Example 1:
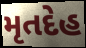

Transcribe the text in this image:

મૃતદેહ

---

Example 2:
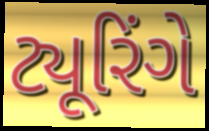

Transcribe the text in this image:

ટ્યૂરિંગે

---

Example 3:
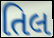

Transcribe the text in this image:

તિલ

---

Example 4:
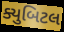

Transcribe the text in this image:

ક્યુબિટલ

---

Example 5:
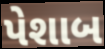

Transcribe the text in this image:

પેશાબ